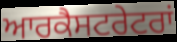
ਆਰਕੈਸਟਰੇਟਰਾਂ